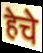
हेचे